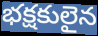
భక్షకులైన